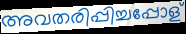
അവതരിപ്പിച്ചപ്പോള്